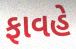
ફાવહે